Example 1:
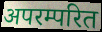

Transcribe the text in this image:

अपरम्परित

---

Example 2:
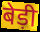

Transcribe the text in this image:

बेड़ी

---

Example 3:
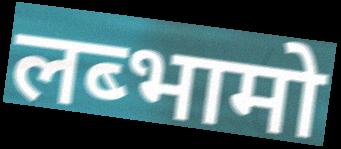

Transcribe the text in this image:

लब्भामो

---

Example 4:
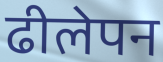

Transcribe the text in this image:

ढीलेपन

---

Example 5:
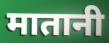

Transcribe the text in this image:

मातानी